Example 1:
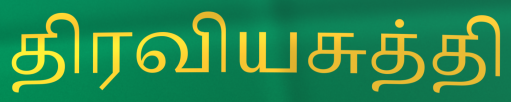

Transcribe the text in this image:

திரவியசுத்தி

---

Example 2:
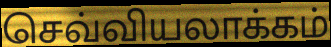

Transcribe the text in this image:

செவ்வியலாக்கம்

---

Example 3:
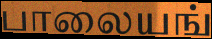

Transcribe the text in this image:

பாலையங்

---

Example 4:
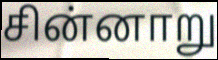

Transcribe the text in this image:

சின்னாறு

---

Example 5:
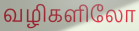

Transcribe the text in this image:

வழிகளிலோ